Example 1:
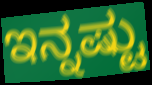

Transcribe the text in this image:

ಇನ್ನಷ್ಟು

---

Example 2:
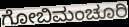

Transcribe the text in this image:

ಗೋಬಿಮಂಚೂರಿ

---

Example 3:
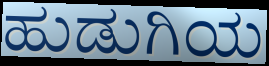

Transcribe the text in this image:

ಹುಡುಗಿಯ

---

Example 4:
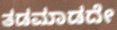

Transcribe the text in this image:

ತಡಮಾಡದೇ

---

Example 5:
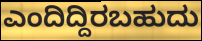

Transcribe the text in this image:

ಎಂದಿದ್ದಿರಬಹುದು